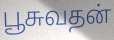
பூசுவதன்